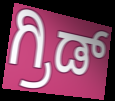
ಗ್ರಿಡ್